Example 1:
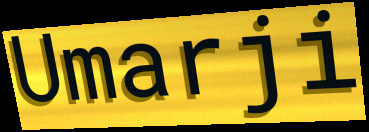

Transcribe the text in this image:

Umarji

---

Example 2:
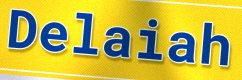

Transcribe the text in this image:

Delaiah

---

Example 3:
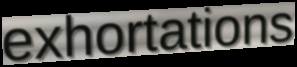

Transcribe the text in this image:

exhortations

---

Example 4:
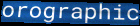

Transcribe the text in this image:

orographic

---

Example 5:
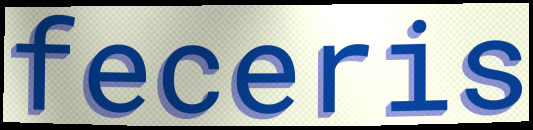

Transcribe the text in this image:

feceris